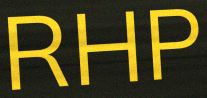
RHP